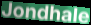
Jondhale